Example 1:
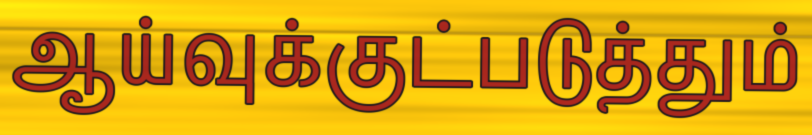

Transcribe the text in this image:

ஆய்வுக்குட்படுத்தும்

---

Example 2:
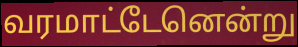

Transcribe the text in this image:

வரமாட்டேனென்று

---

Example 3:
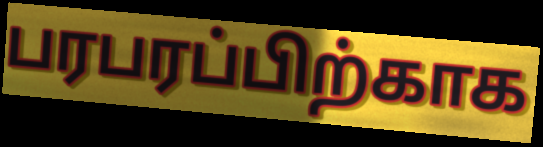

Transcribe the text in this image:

பரபரப்பிற்காக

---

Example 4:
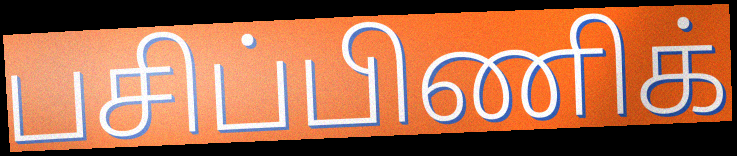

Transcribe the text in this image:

பசிப்பிணிக்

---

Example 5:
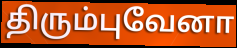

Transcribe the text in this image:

திரும்புவேனா